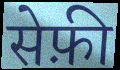
सेफ़ी